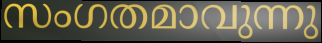
സംഗതമാവുന്നു